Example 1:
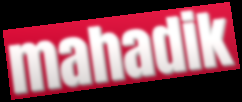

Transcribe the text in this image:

mahadik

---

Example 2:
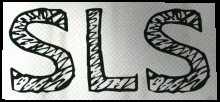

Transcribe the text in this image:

SLS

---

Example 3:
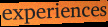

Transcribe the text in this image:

experiences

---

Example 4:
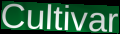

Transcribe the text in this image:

Cultivar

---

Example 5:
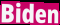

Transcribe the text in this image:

Biden